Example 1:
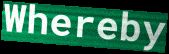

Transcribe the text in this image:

Whereby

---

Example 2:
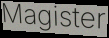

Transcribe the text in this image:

Magister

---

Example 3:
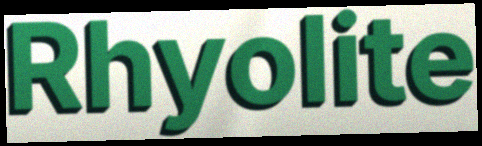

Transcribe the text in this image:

Rhyolite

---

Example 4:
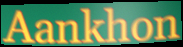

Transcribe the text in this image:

Aankhon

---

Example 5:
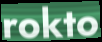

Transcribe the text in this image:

rokto